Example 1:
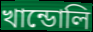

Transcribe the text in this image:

খান্ডোলি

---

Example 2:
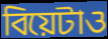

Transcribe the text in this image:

বিয়েটাও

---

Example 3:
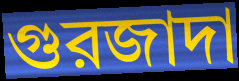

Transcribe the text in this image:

গুরজাদা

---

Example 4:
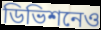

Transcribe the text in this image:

ডিভিশনেও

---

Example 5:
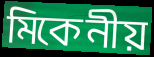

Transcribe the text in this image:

মিকেনীয়